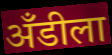
अँडीला